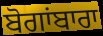
ਬੋਗਾਂਬਾਰਾ